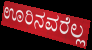
ಊರಿನವರೆಲ್ಲ